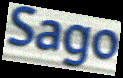
Sago